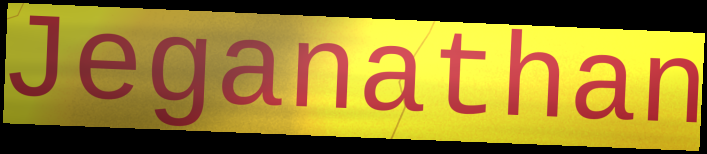
Jeganathan